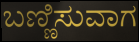
ಬಣ್ಣಿಸುವಾಗ